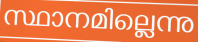
സ്ഥാനമില്ലെന്നു